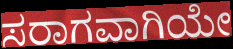
ಸರಾಗವಾಗಿಯೇ